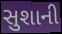
સુશાની